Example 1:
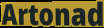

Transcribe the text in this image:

Artonad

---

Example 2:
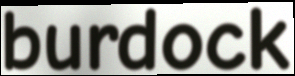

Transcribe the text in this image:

burdock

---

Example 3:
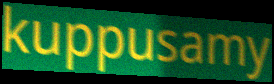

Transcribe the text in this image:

kuppusamy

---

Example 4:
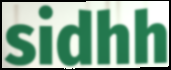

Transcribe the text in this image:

sidhh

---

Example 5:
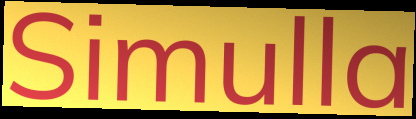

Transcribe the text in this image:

Simulla